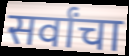
सर्वांचा